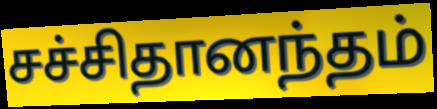
சச்சிதானந்தம்